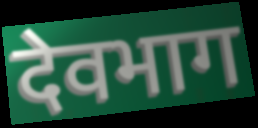
देवभाग